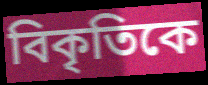
বিকৃতিকে